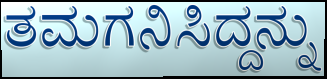
ತಮಗನಿಸಿದ್ದನ್ನು